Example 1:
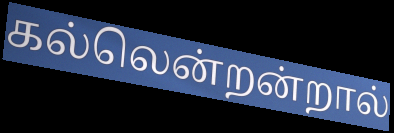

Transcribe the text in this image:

கல்லென்றன்றால்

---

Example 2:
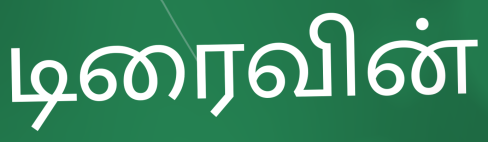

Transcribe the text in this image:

டிரைவின்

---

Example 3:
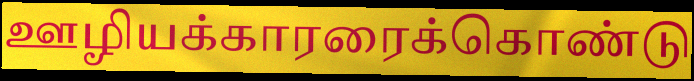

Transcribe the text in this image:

ஊழியக்காரரைக்கொண்டு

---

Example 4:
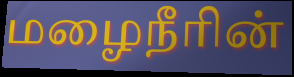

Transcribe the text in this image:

மழைநீரின்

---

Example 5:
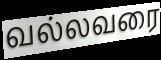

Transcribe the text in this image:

வல்லவரை